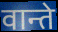
वान्ते